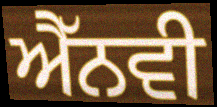
ਐੱਨਵੀ